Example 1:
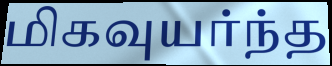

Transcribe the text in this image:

மிகவுயர்ந்த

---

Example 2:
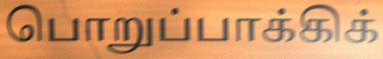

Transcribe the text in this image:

பொறுப்பாக்கிக்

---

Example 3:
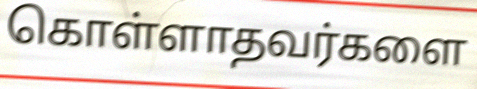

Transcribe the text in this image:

கொள்ளாதவர்களை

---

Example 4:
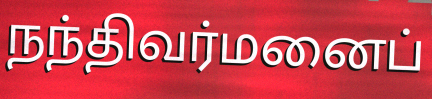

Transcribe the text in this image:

நந்திவர்மனைப்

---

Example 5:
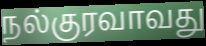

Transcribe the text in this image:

நல்குரவாவது